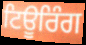
ਟਿਊਰਿੰਗ